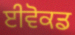
ਈਵੋਕਡ